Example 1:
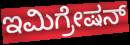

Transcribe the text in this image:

ಇಮಿಗ್ರೇಷನ್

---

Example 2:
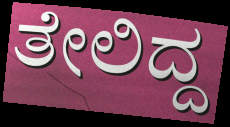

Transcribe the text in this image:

ತೇಲಿದ್ದ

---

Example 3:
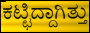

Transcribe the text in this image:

ಕಟ್ಟಿದ್ದಾಗಿತ್ತು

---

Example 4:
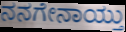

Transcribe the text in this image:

ನನಗೇನಾಯ್ತು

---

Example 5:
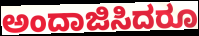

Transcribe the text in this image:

ಅಂದಾಜಿಸಿದರೂ